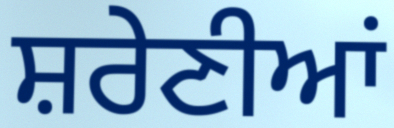
ਸ਼ਰੇਣੀਆਂ